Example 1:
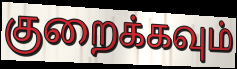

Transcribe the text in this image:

குறைக்கவும்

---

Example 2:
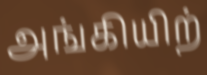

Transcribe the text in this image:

அங்கியிற்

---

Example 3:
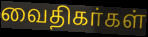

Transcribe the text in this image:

வைதிகர்கள்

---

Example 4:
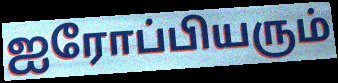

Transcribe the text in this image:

ஐரோப்பியரும்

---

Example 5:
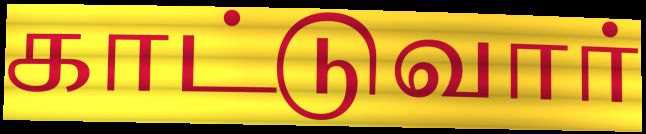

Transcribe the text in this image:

காட்டுவார்